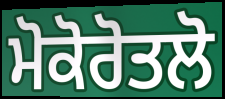
ਮੋਕੋਰੋਤਲੋ